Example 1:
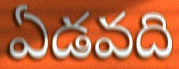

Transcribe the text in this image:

ఏడవది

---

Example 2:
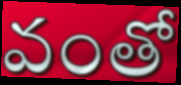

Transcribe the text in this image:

వంతో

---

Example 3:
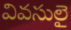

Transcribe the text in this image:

వివసులై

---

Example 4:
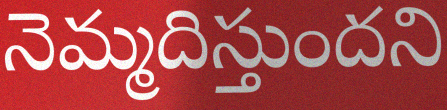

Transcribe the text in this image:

నెమ్మదిస్తుందని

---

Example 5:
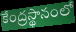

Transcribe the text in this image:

కేంద్రస్థానంలో